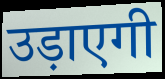
उड़ाएगी